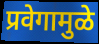
प्रवेगामुळे